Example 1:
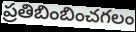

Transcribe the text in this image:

ప్రతిబింబించగలం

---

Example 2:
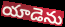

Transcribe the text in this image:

యాడెను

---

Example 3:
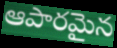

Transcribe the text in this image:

ఆపారమైన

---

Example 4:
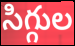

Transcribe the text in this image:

సిగ్గుల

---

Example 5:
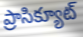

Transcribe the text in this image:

ప్రాసిక్యూట్